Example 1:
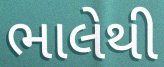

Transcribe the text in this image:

ભાલેથી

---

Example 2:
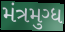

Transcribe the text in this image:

મંત્રમુગ્ધ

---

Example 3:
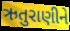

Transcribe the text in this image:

ઋતુરાણીને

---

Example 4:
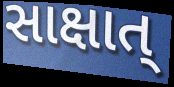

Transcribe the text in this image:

સાક્ષાત્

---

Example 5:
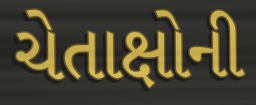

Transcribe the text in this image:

ચેતાક્ષોની